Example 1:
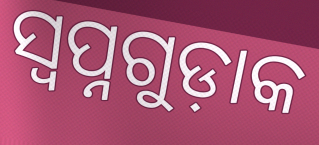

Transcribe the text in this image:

ସ୍ୱପ୍ନଗୁଡ଼ାକ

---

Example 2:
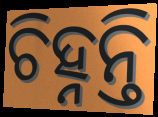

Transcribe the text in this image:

ଚିହ୍ନନ୍ତି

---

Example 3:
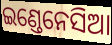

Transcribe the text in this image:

ଇଣ୍ଡେନେସିଆ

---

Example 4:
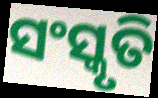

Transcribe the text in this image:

ସଂସ୍କୃତି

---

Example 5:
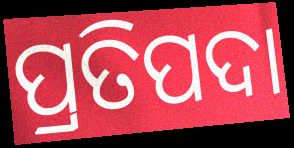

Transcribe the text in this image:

ପ୍ରତିପଦା